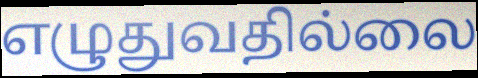
எழுதுவதில்லை